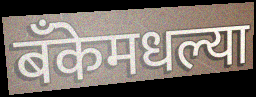
बँकेमधल्या